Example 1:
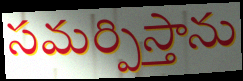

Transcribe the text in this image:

సమర్పిస్తాను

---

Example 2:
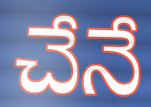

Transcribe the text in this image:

చేనే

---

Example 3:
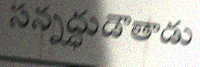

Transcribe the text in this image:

సన్నద్ధుడౌతాడు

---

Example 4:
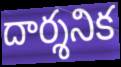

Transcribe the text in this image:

దార్శనిక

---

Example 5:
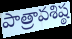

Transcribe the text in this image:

పాత్రావశిష్ఠ